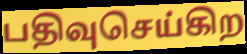
பதிவுசெய்கிற